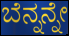
ಬೆನ್ನನ್ನೇ